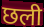
छली